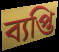
ব্যপ্তি